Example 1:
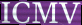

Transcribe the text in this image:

ICMV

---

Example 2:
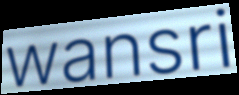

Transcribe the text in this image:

wansri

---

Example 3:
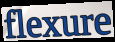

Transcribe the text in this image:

flexure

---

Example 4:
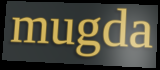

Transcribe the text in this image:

mugda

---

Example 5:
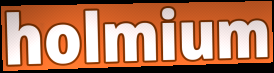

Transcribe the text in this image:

holmium